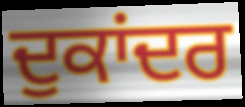
ਦੁਕਾਂਦਰ